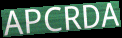
APCRDA